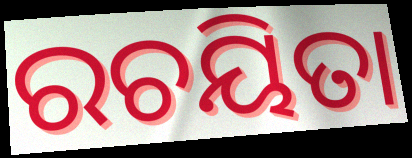
ରଚୟିତା